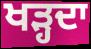
ਖੜ੍ਹਦਾ